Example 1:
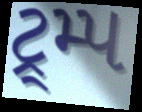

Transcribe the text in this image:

ટ્ર્મ્પ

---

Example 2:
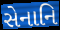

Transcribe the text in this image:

સેનાનિ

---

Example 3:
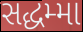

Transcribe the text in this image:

સદ્ધમ્મા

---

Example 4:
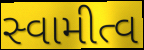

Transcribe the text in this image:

સ્વામીત્વ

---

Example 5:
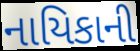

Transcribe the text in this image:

નાયિકાની